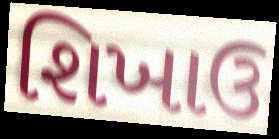
શિખાઉ